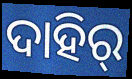
ଦାହିର୍